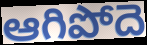
ఆగిపోదె